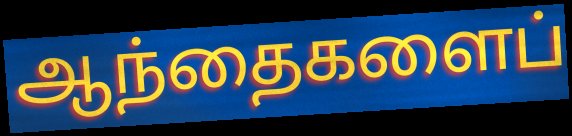
ஆந்தைகளைப்